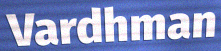
Vardhman